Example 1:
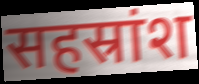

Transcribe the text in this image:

सहस्रांश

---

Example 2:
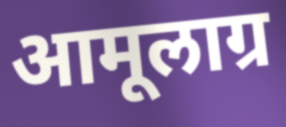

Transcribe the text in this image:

आमूलाग्र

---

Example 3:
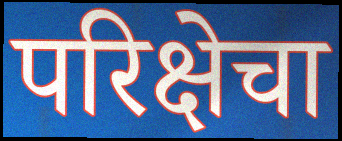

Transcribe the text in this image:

परिक्षेचा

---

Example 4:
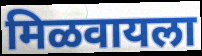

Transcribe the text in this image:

मिळवायला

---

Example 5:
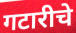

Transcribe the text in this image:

गटारीचे